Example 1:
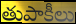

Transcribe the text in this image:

తుపాకీలు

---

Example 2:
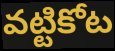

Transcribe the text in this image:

వట్టికోట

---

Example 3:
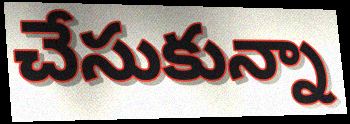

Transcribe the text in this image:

చేసుకున్నా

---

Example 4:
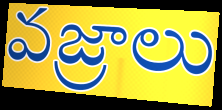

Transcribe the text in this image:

వజ్రాలు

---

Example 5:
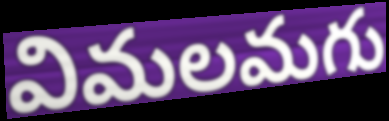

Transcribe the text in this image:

విమలమగు